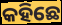
କହିଛେ